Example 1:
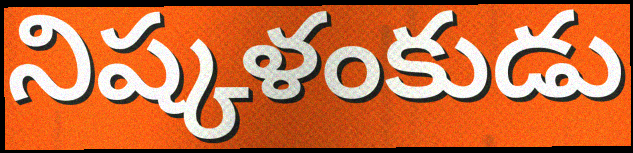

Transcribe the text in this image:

నిష్కళంకుడు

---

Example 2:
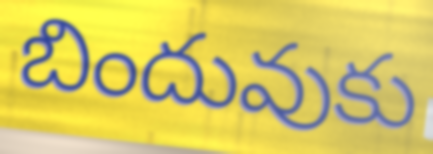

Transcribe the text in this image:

బిందువుకు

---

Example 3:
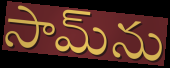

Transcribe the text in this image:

సామ్‌ను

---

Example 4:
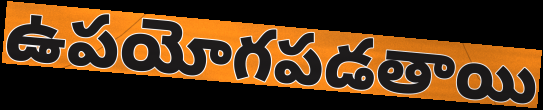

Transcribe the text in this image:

ఉపయోగపడతాయి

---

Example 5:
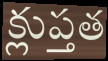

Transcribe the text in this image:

క్లుప్తత